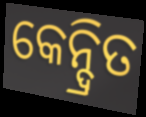
କେନ୍ଦ୍ରିତ